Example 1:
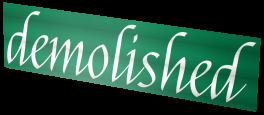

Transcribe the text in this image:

demolished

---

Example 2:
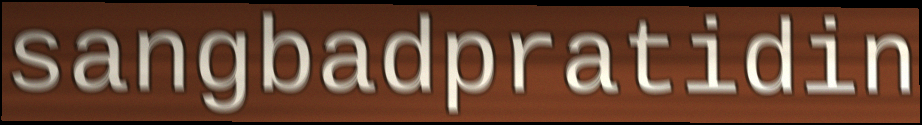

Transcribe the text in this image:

sangbadpratidin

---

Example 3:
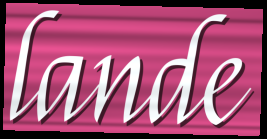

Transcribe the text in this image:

lande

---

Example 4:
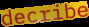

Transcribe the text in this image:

decribe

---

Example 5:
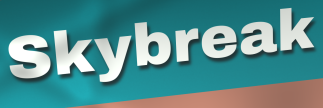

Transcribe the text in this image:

Skybreak